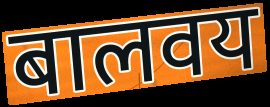
बालवय